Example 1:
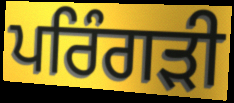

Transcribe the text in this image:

ਪਰਿੰਗੜੀ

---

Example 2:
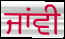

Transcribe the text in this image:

ਜਾਂਵੀ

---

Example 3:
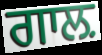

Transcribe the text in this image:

ਗਾਲ਼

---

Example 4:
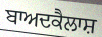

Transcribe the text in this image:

ਬਾਅਦਕੈਲਾਸ਼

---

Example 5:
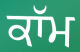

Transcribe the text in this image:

ਕਾੱਮ